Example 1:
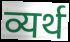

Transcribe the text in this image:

व्यर्थ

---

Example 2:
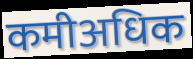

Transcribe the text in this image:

कमीअधिक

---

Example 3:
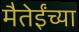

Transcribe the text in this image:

मैतेईंच्या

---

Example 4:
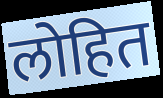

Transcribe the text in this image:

लोहित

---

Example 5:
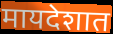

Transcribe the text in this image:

मायदेशात